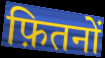
फ़ितनों